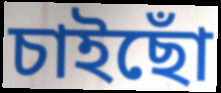
চাইছোঁ